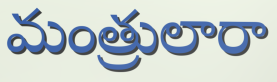
మంత్రులారా